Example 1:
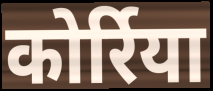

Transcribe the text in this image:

कोर्रिया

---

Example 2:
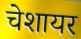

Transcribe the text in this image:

चेशायर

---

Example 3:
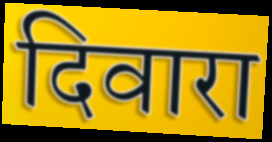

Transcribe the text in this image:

दिवारा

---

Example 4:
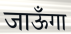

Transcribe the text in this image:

जाऊँगा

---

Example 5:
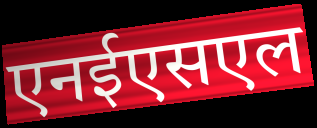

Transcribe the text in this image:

एनईएसएल